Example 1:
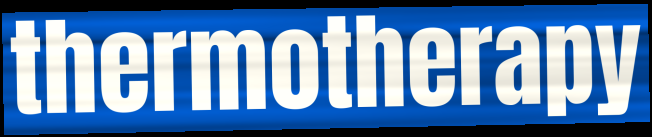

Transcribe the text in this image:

thermotherapy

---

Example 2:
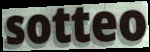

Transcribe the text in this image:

sotteo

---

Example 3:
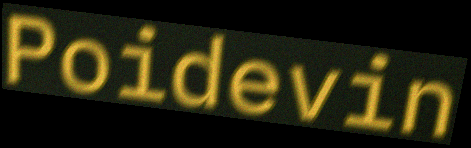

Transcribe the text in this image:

Poidevin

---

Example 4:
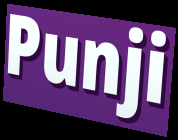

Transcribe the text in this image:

Punji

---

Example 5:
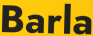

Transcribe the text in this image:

Barla